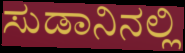
ಸುಡಾನಿನಲ್ಲಿ